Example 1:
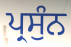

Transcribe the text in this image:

ਪ੍ਰਸੁੰਨ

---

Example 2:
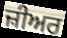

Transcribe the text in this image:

ਜ਼ੀਅਰ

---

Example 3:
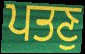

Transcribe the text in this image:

ਪਤਣੁ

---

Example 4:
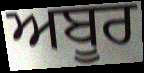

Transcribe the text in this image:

ਅਬੂਰ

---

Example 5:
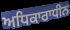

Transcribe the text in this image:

ਅਧਿਕਾਰਾਧੀਨ